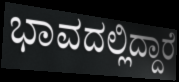
ಭಾವದಲ್ಲಿದ್ದಾರೆ